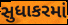
સુધાકરમાં